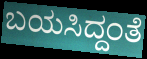
ಬಯಸಿದ್ದಂತೆ